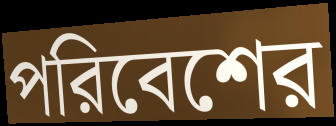
পরিবেশের